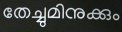
തേച്ചുമിനുക്കും